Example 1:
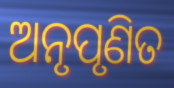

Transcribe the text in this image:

ଅନୃପୃଣିତ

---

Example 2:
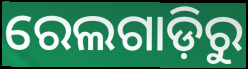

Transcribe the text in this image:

ରେଲଗାଡ଼ିରୁ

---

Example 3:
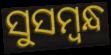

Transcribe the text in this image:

ସୁସମ୍ବନ୍ଧ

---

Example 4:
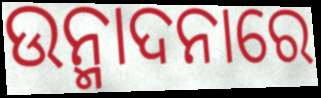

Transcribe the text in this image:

ଉନ୍ମାଦନାରେ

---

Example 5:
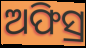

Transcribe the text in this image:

ଅଫିସ୍ର